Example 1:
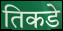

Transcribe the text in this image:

तिकडे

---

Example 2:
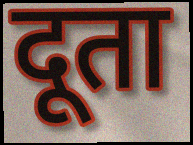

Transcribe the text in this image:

दूता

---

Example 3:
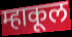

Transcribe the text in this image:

म्हाकूल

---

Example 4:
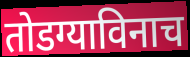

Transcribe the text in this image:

तोडग्याविनाच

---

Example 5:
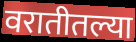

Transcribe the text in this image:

वरातीतल्या